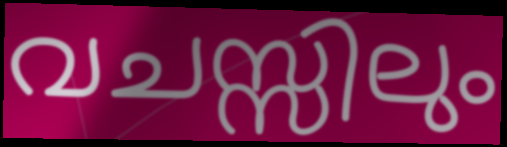
വചസ്സിലും